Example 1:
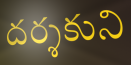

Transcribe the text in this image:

దర్శకుని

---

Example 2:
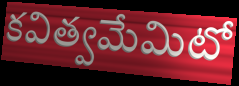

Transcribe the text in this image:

కవిత్వమేమిటో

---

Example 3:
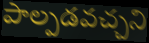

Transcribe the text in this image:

పాల్పడవచ్చని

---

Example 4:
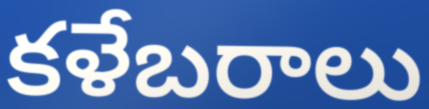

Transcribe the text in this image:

కళేబరాలు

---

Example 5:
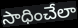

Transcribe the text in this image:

సాధించేలా